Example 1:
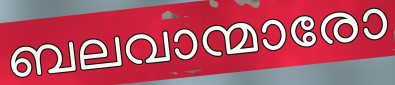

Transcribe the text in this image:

ബലവാന്മാരോ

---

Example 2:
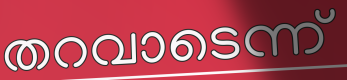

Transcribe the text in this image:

തറവാടെന്ന്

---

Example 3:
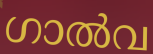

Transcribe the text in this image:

ഗാൽവ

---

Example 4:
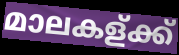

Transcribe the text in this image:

മാലകള്ക്ക്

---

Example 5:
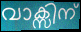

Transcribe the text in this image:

വാക്സിന്